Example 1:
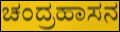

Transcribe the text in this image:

ಚಂದ್ರಹಾಸನ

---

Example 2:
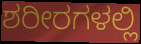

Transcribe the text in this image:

ಶರೀರಗಳಲ್ಲಿ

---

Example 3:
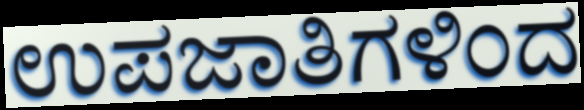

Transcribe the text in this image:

ಉಪಜಾತಿಗಳಿಂದ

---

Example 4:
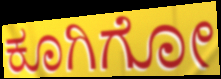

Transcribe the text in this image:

ಕೂಗಿಗೋ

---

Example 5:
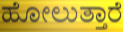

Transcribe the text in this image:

ಹೋಲುತ್ತಾರೆ